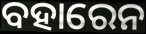
ବହାରେନ